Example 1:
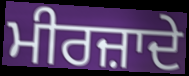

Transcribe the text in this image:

ਮੀਰਜ਼ਾਦੇ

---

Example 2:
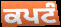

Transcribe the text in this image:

ਕਪਟੰ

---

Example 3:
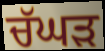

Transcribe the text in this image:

ਚੱਘੜ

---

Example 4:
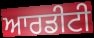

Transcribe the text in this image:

ਆਰਡੀਟੀ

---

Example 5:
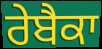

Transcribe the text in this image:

ਰੇਬੈਕਾ